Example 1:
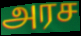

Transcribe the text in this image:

அரச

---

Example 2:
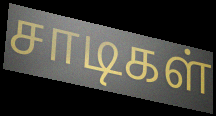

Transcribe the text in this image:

சாடிகள்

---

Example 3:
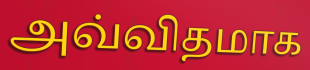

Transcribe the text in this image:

அவ்விதமாக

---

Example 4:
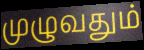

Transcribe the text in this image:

முழுவதும்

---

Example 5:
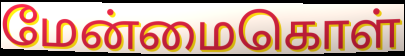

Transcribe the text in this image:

மேன்மைகொள்